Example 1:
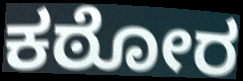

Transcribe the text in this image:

ಕಠೋರ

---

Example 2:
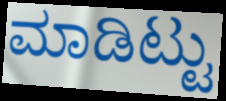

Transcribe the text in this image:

ಮಾಡಿಟ್ಟು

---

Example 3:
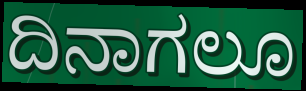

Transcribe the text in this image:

ದಿನಾಗಲೂ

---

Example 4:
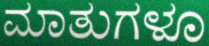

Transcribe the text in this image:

ಮಾತುಗಳೂ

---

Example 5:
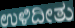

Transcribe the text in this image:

ಉಳಿದೀತು